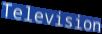
Television